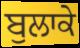
ਬੁਲਾਕੇ